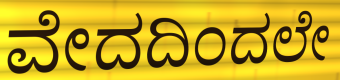
ವೇದದಿಂದಲೇ